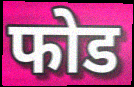
फोड